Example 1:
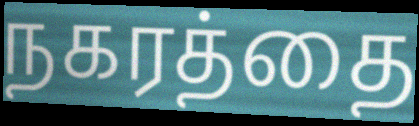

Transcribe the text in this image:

நகரத்தை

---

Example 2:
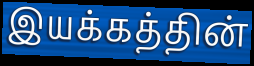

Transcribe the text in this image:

இயக்கத்தின்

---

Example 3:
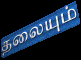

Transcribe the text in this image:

தலையும்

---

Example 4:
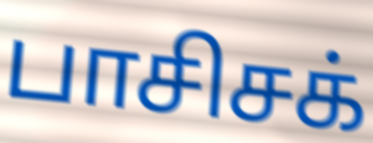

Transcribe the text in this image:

பாசிசக்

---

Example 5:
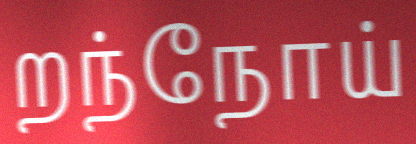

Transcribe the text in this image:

றந்நோய்